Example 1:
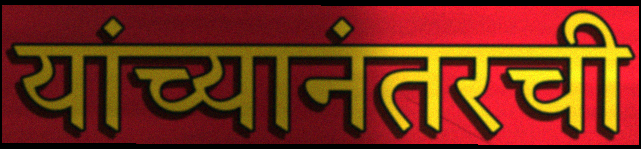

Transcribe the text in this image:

यांच्यानंतरची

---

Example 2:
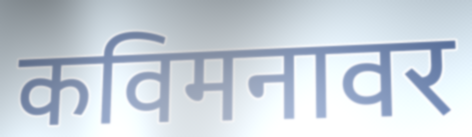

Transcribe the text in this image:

कविमनावर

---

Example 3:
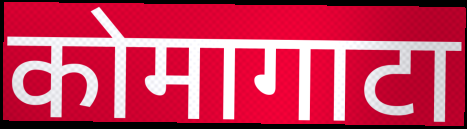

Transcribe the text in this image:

कोमागाटा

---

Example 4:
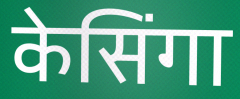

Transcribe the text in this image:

केसिंगा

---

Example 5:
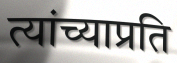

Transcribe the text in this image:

त्यांच्याप्रति